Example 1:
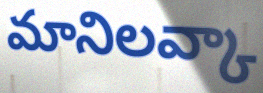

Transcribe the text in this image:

మానిలవ్కా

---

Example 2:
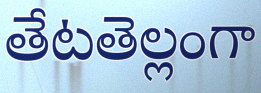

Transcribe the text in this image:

తేటతెల్లంగా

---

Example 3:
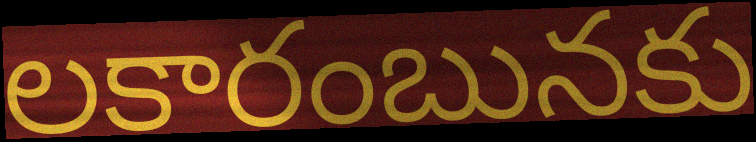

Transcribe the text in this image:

లకారంబునకు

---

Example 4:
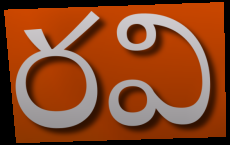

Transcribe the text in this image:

రవి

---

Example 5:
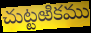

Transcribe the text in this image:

చుట్టఱికము